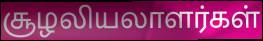
சூழலியலாளர்கள்